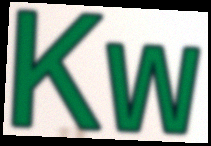
Kw